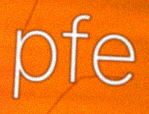
pfe